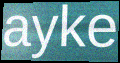
ayke